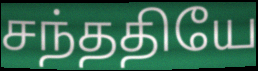
சந்ததியே